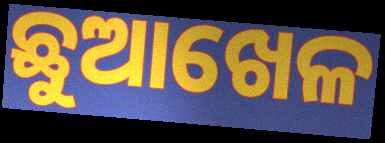
ଛୁଆଖେଳ